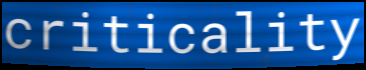
criticality